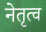
नेतृत्व